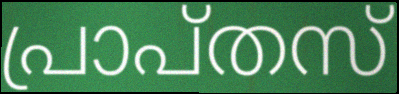
പ്രാപ്തസ്